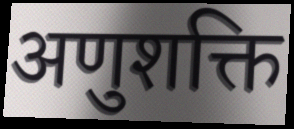
अणुशक्ति